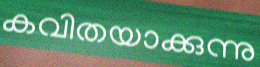
കവിതയാക്കുന്നു